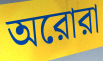
অরোরা